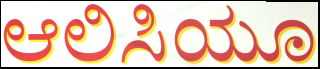
ಆಲಿಸಿಯೂ